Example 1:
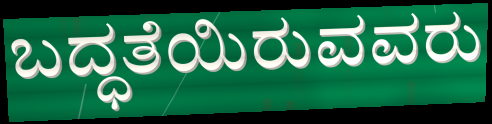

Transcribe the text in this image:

ಬದ್ಧತೆಯಿರುವವರು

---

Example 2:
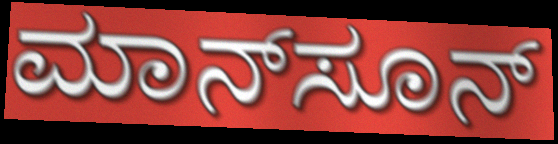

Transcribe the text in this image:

ಮಾನ್‌ಸೂನ್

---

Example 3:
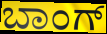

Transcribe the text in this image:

ಬಾಂಗ್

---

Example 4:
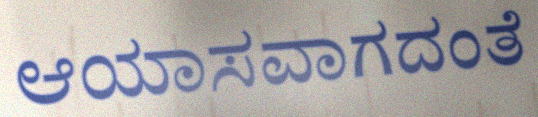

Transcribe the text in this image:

ಆಯಾಸವಾಗದಂತೆ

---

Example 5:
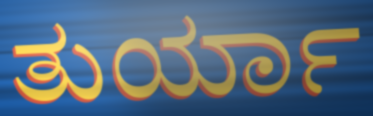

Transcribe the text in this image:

ತುರ್ಯಾ